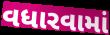
વધારવામાં